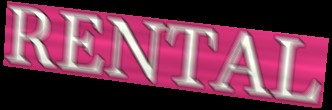
RENTAL